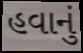
હવાનું